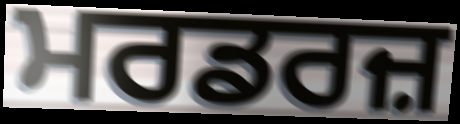
ਮਰਡਰਜ਼